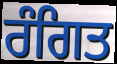
ਰੰਗਿਤ